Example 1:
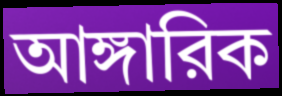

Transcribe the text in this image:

আঙ্গারিক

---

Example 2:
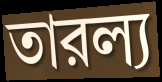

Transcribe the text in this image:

তারল্য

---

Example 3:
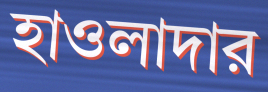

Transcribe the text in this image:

হাওলাদার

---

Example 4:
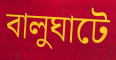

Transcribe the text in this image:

বালুঘাটে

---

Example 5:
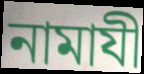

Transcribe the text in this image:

নামাযী